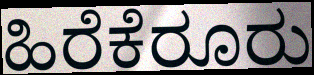
ಹಿರೆಕೆರೂರು